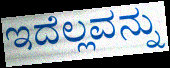
ಇದೆಲ್ಲವನ್ನು